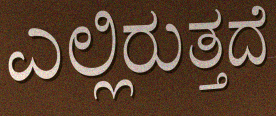
ಎಲ್ಲಿರುತ್ತದೆ